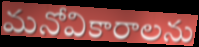
మనోవికారాలను